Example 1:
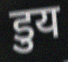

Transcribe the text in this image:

डुय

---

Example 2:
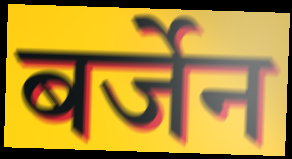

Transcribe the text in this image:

बर्जेन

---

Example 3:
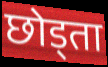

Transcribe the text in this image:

छोड्ता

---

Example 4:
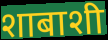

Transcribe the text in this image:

शाबाशी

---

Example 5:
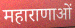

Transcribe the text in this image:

महाराणाओं